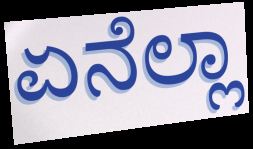
ಏನೆಲ್ಲಾ